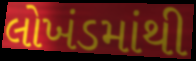
લોખંડમાંથી